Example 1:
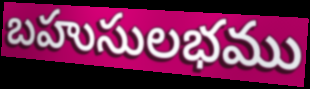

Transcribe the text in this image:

బహుసులభము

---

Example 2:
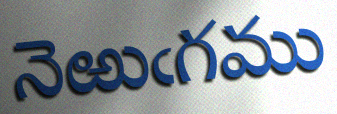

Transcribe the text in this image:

నెఱుఁగము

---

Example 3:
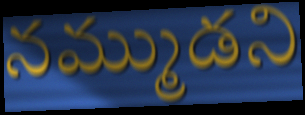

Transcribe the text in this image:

నమ్ముడని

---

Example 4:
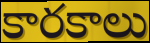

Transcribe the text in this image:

కారకాలు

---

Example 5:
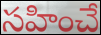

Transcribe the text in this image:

సహించే